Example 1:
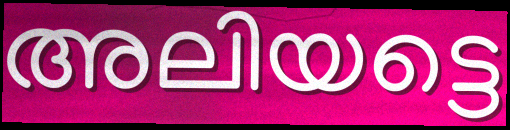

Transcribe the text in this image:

അലിയട്ടെ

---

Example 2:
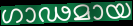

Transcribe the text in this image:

ഗാഢമായ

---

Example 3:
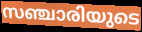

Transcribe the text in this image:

സഞ്ചാരിയുടെ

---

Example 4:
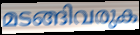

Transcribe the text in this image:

മടങ്ങിവരുക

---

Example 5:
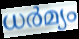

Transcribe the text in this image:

ധർമ്യം